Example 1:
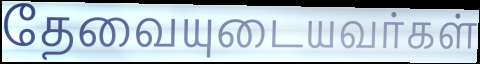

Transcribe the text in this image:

தேவையுடையவர்கள்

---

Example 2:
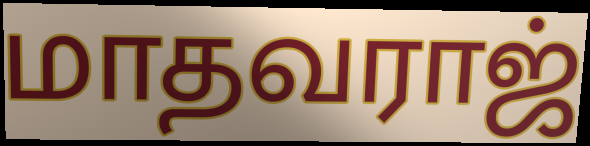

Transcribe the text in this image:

மாதவராஜ்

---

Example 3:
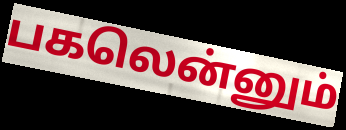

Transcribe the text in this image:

பகலென்னும்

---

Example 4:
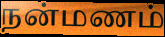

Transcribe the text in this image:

நன்மணம்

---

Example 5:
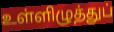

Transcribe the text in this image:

உள்ளிழுத்துப்